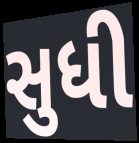
સુધી